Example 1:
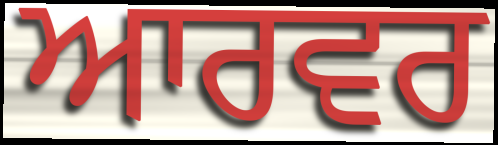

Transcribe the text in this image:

ਆਰਵਰ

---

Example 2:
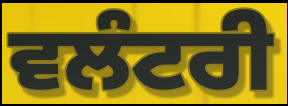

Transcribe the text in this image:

ਵਲੰਟਰੀ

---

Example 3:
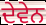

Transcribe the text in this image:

ਦੇਵੇਨ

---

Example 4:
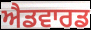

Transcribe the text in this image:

ਐਡਵਾਰਡ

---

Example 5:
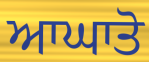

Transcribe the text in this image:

ਆਘਾਤੋ